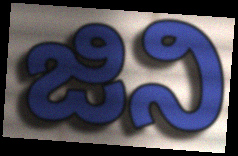
ಜಿನಿ